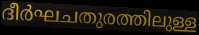
ദീർഘചതുരത്തിലുള്ള